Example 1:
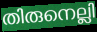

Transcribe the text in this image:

തിരുനെല്ലി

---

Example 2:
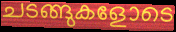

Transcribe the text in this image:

ചടങ്ങുകളോടെ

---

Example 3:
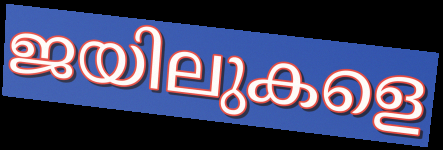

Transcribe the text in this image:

ജയിലുകളെ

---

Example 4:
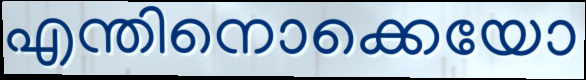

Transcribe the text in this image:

എന്തിനൊക്കെയോ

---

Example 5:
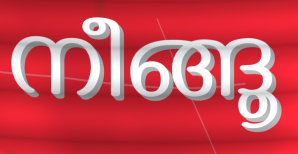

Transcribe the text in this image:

നീങ്ങൂ